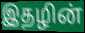
இதழின்